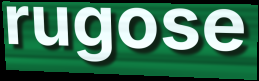
rugose